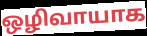
ஒழிவாயாக